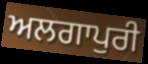
ਅਲਗਾਪੁਰੀ